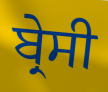
ਬ੍ਰੇਸੀ